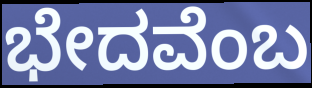
ಭೇದವೆಂಬ